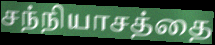
சந்நியாசத்தை